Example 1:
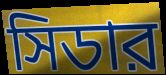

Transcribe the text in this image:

সিডার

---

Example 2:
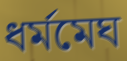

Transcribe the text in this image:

ধর্মমেঘ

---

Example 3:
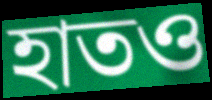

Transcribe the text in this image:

হাতও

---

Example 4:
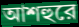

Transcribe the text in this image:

আশহুরে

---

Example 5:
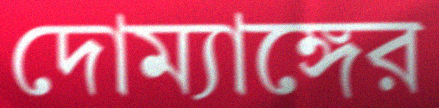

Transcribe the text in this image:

দোম্যাঙ্গের